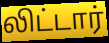
லிட்டார்